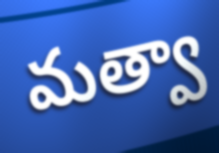
మత్వా